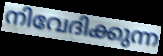
നിവേദിക്കുന്ന